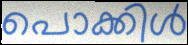
പൊക്കിൾ